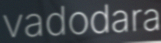
vadodara